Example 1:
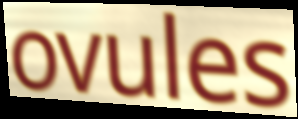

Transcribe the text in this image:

ovules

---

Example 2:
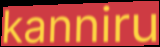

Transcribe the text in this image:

kanniru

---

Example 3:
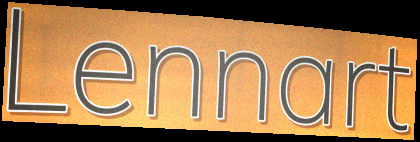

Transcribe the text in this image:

Lennart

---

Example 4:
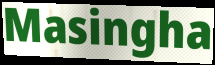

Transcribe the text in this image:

Masingha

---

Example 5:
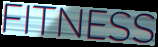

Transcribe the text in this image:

FITNESS